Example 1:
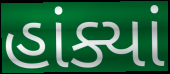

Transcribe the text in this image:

હાંક્યાં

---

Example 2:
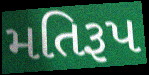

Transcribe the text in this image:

મતિરૂપ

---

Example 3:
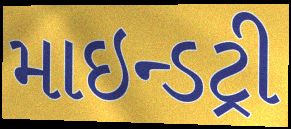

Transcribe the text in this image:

માઇન્ડટ્રી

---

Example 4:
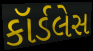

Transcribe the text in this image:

કૉર્ડલેસ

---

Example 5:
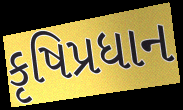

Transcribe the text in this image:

કૃષિપ્રધાન